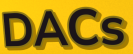
DACs